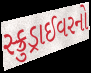
સ્ક્રુડ્રાઈવરનો